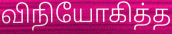
விநியோகித்த